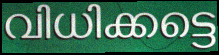
വിധിക്കട്ടെ